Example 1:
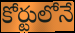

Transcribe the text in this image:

కోర్టులోనే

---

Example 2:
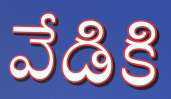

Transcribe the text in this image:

వేడికి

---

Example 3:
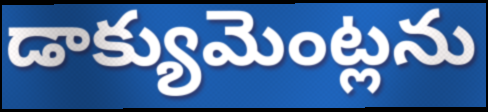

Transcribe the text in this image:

డాక్యుమెంట్లను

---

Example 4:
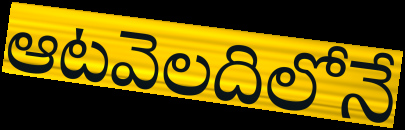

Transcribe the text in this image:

ఆటవెలదిలోనే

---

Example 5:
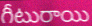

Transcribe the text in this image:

గీటురాయి